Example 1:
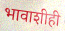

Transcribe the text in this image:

भावाशीही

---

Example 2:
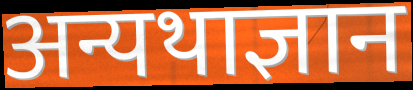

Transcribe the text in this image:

अन्यथाज्ञान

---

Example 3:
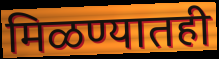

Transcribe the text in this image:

मिळण्यातही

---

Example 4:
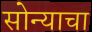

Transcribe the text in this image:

सोन्याचा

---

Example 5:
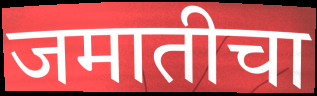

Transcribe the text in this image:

जमातीचा